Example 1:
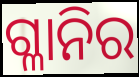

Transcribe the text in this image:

ଗ୍ଳାନିର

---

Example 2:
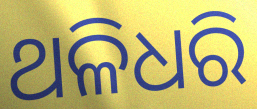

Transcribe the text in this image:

ଥଳିଧରି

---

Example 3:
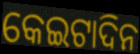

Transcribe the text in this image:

କେଇଟାଦିନ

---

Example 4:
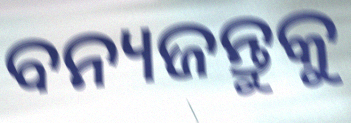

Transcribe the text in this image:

ବନ୍ୟଜନ୍ତୁକୁ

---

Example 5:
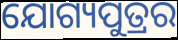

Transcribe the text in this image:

ଯୋଗ୍ୟପୁତ୍ରର